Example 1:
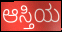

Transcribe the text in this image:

ಆಸ್ತಿಯ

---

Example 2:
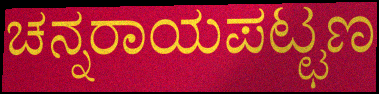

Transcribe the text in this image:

ಚನ್ನರಾಯಪಟ್ಟಣ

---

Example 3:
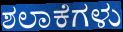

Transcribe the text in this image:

ಶಲಾಕೆಗಳು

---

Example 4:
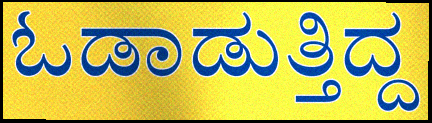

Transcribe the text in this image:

ಓಡಾಡುತ್ತಿದ್ದ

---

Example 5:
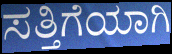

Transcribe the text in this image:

ಸತ್ತಿಗೆಯಾಗಿ